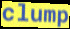
clump